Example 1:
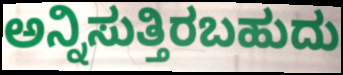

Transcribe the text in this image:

ಅನ್ನಿಸುತ್ತಿರಬಹುದು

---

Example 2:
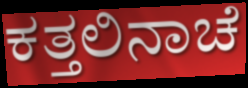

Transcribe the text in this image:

ಕತ್ತಲಿನಾಚೆ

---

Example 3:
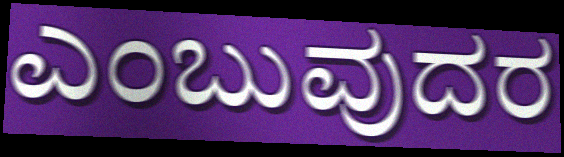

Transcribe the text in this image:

ಎಂಬುವುದರ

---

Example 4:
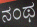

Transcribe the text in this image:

ನಂಥ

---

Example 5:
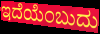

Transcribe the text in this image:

ಇದೆಯೆಂಬುದು